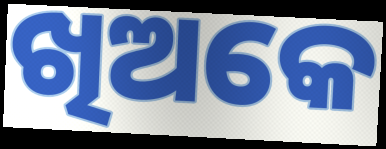
ଖିଅକେ